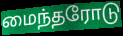
மைந்தரோடு